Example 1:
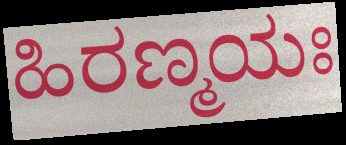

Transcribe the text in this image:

ಹಿರಣ್ಮಯಃ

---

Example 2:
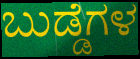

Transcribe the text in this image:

ಬುಡ್ಡೆಗಳ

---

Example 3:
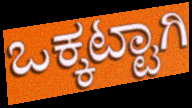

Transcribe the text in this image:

ಒಕ್ಕಟ್ಟಾಗಿ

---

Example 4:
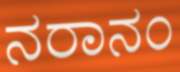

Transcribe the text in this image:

ನರಾನಂ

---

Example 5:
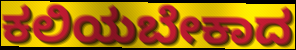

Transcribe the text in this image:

ಕಲಿಯಬೇಕಾದ